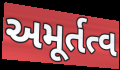
અમૂર્તત્વ